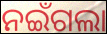
ନଇଁଗଲା